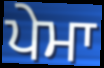
ਪੇਮਾ